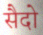
सैदो